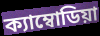
ক্যাম্বোডিয়া